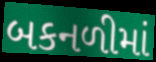
બકનળીમાં